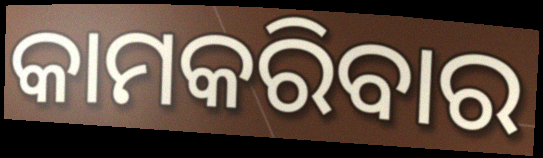
କାମକରିବାର